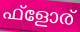
ഫ്ളോര്